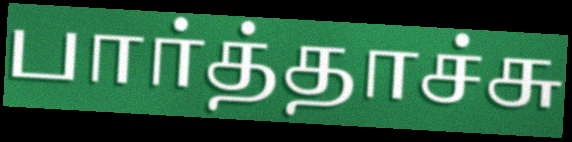
பார்த்தாச்சு